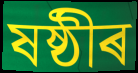
ষষ্ঠীৰ